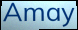
Amay